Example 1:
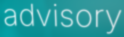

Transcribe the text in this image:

advisory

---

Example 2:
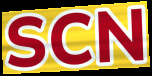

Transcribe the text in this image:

SCN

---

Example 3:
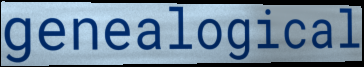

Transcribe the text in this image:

genealogical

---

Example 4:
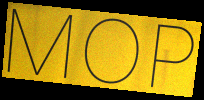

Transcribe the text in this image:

MOP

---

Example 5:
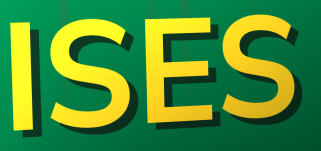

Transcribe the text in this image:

ISES